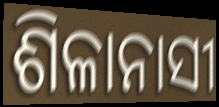
ଶିଳାନାସୀ